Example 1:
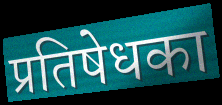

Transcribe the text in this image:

प्रतिषेधका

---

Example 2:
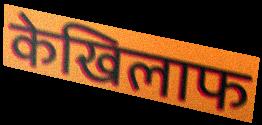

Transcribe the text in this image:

केखिलाफ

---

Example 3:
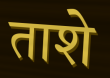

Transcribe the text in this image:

ताशे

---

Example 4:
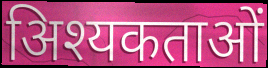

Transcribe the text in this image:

अिश्यकताओं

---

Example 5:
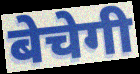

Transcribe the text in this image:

बेचेगी